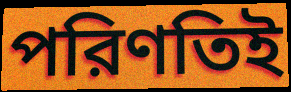
পরিণতিই